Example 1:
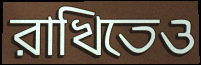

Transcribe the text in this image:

রাখিতেও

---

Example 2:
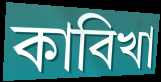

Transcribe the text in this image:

কাবিখা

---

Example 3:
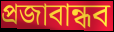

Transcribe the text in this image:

প্রজাবান্ধব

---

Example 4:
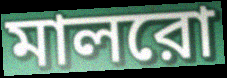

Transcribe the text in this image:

মালরো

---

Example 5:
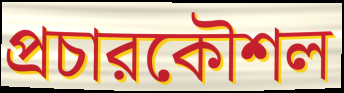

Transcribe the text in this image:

প্রচারকৌশল